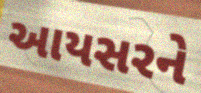
આયસરને